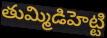
తుమ్మిడిహెట్టి